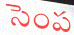
సెంప